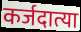
कर्जदात्या